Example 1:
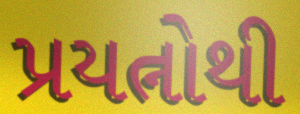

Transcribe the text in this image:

પ્રયત્નોથી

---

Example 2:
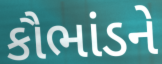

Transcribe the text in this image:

કૌભાંડને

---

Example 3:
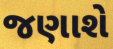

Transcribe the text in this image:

જણાશે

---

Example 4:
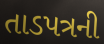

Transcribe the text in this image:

તાડપત્રની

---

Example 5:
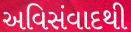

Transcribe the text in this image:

અવિસંવાદથી